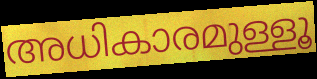
അധികാരമുള്ളൂ